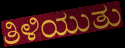
ತಿಳಿಯುತು